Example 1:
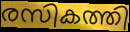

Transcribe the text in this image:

രസികത്തി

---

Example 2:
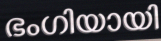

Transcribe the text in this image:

ഭംഗിയായി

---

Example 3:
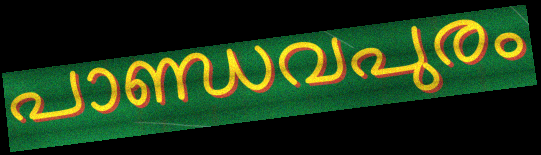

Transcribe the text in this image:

പാണ്ഡവപുരം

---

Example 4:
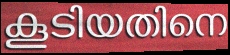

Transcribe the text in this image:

കൂടിയതിനെ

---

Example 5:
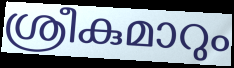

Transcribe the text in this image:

ശ്രീകുമാറും